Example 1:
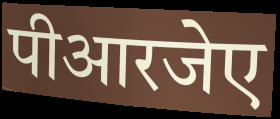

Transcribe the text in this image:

पीआरजेए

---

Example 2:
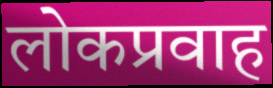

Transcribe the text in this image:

लोकप्रवाह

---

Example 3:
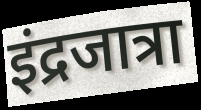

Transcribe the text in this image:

इंद्रजात्रा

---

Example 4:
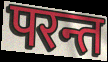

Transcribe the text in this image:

परन्त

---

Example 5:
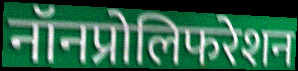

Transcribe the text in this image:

नॉनप्रोलिफरेशन